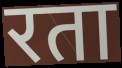
रता